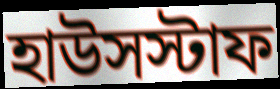
হাউসস্টাফ